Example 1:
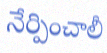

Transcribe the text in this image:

నేర్పించాలీ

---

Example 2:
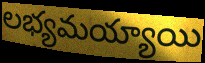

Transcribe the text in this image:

లభ్యమయ్యాయి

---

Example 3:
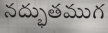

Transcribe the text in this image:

నద్భుతముగ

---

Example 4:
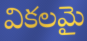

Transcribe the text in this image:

వికలమై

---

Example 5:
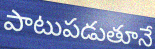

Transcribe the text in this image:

పాటుపడుతూనే